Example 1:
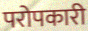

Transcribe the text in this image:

परोपकारी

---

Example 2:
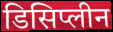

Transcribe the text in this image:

डिसिप्लीन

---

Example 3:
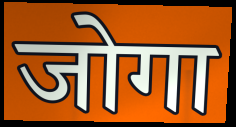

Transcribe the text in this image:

जोगा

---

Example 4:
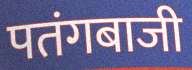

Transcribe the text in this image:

पतंगबाजी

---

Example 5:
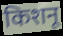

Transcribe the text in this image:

किशनू